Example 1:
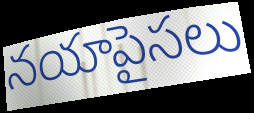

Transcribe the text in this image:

నయాపైసలు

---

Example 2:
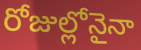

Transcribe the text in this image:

రోజుల్లోనైనా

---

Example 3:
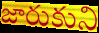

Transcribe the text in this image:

జారుకుని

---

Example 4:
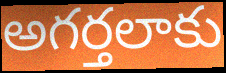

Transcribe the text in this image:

అగర్తలాకు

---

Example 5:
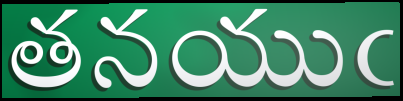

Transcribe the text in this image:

తనయుఁ